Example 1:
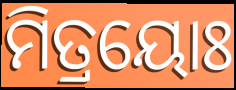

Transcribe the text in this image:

ମିତ୍ରୟୋଃ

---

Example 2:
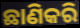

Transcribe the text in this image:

ଛାଣିକରି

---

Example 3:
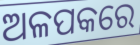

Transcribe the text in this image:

ଅଳପକରେ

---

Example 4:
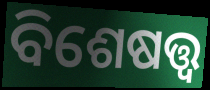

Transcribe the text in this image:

ବିଶେଷତ୍ତ୍ୱ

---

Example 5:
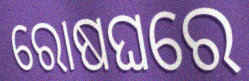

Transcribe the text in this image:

ରୋଷଘରେ